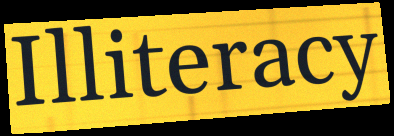
Illiteracy